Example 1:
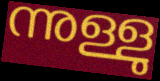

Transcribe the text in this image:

ന്നുള്ളു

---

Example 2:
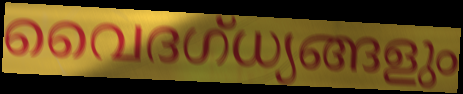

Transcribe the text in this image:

വൈദഗ്ധ്യങ്ങളും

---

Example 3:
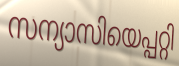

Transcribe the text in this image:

സന്യാസിയെപ്പറ്റി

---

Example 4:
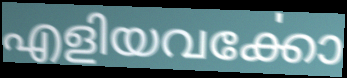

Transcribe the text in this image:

എളിയവൎക്കോ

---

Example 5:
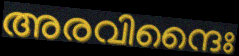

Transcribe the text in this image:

അരവിന്ദൈഃ